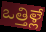
ఒత్తిళ్లే